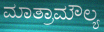
ಮಾತ್ರಾಮೌಲ್ಯ